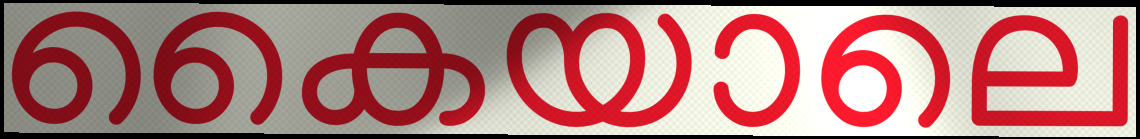
കൈയാലെ